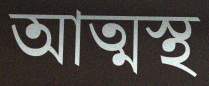
আত্মস্থ